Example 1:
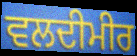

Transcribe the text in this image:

ਵਲਦੀਮੀਰ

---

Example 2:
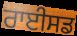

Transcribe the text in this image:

ਰਾਈਸਡ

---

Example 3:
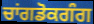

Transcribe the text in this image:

ਚਾਂਗਡੋਕਗੰਗ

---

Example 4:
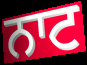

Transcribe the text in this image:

ਨਾਟ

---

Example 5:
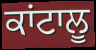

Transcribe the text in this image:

ਕਾਂਟਾਲੂ